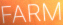
FARM